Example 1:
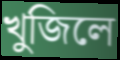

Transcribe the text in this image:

খুজিলে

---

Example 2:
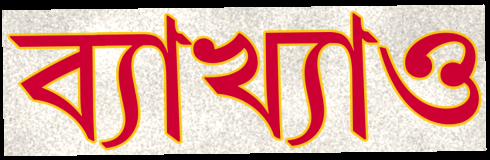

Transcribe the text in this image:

ব্যাখ্যাও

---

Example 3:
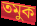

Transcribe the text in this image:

তমুক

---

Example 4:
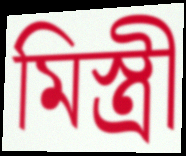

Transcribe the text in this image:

মিস্ত্ৰী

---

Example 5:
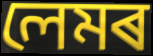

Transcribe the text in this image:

লেমৰ